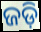
ଜଡ଼ି